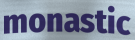
monastic